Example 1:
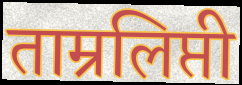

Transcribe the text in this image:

ताम्रलिप्ती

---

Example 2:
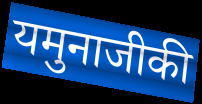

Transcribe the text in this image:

यमुनाजीकी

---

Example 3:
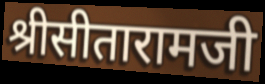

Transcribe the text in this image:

श्रीसीतारामजी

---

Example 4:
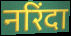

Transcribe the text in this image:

नरिंदा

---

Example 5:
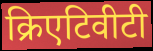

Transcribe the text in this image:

क्रिएटिवीटी